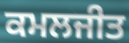
ਕਮਲਜੀਤ